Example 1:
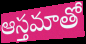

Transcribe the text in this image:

ఆస్తమాతో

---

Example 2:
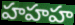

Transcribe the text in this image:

హహహ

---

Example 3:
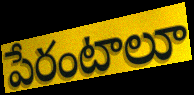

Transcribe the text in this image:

పేరంటాలూ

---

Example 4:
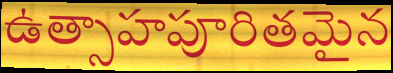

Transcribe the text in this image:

ఉత్సాహపూరితమైన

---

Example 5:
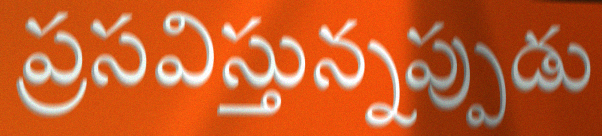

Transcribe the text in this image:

ప్రసవిస్తున్నప్పుడు